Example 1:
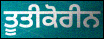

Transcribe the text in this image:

ਤੂਤੀਕੋਰੀਨ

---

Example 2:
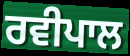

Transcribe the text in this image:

ਰਵੀਪਾਲ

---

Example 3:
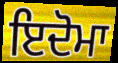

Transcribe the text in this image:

ਇਦੋਮਾ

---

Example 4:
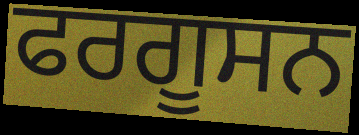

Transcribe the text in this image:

ਫਰਗੂਸਨ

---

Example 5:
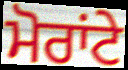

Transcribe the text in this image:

ਮੋਰਾਂਟੇ